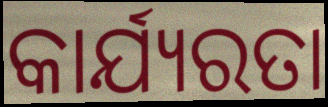
କାର୍ଯ୍ୟରତା